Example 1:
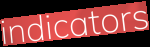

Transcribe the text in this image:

indicators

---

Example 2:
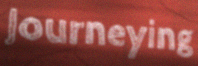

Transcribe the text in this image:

Journeying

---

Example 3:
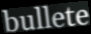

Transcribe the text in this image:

bullete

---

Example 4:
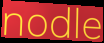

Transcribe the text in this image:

nodle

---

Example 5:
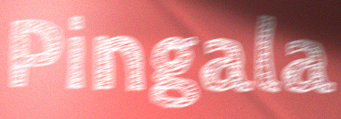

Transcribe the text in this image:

Pingala